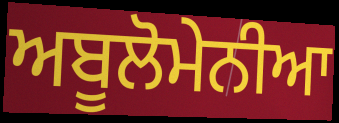
ਅਬੂਲੋਮੇਨੀਆ